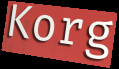
Korg